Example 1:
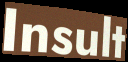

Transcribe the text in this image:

Insult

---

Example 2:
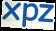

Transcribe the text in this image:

xpz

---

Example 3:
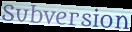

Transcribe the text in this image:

Subversion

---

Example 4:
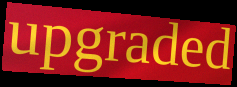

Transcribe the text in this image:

upgraded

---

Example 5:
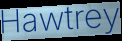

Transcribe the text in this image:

Hawtrey